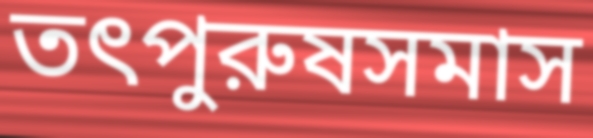
তৎপুরুষসমাস